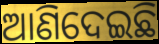
ଆଣିଦେଇଛି